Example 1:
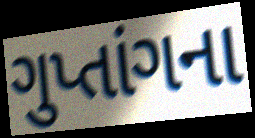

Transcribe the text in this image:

ગુપ્તાંગના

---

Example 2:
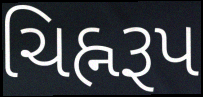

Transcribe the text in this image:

ચિહ્નરૂપ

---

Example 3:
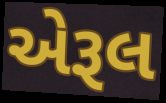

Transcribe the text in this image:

એરૂલ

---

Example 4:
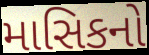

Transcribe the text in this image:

માસિકનો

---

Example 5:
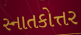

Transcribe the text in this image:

સ્નાતકોત્તર